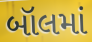
બૉલમાં